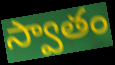
స్వాతం